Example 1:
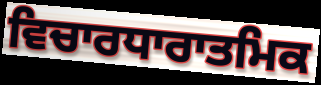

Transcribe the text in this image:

ਵਿਚਾਰਧਾਰਾਤਮਿਕ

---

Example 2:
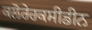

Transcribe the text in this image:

ਕਲੋਰੇਹਕਸੀਡੀਨ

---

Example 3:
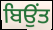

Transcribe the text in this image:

ਬਿਉਂਤ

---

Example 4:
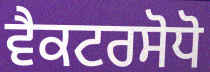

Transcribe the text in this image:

ਵੈਕਟਰਸੋਧੋ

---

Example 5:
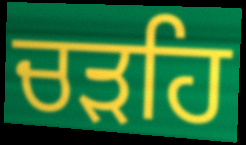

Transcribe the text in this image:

ਚੜਹਿ